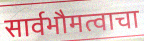
सार्वभौमत्वाचा